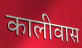
कालीवास